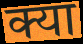
क्‍या